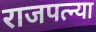
राजपत्न्या